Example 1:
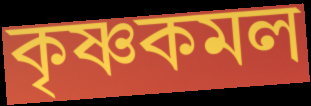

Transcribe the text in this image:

কৃষ্ণকমল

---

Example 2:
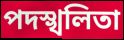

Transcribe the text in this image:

পদস্খলিতা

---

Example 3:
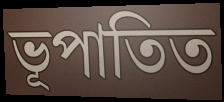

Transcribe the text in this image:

ভূপাতিত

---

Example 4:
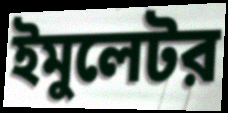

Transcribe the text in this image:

ইমুলেটর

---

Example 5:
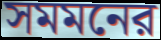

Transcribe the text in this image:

সমমনের